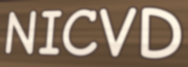
NICVD